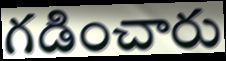
గడించారు